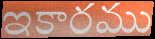
ఇకారము